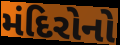
મંદિરોનો